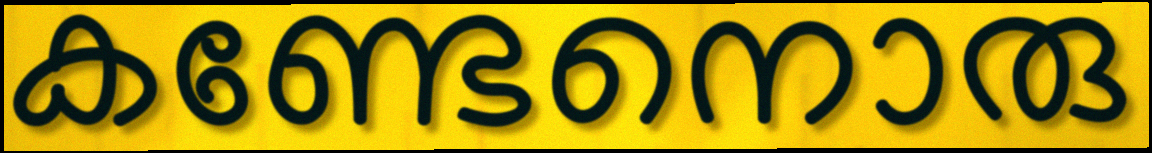
കണ്ടേനൊരു